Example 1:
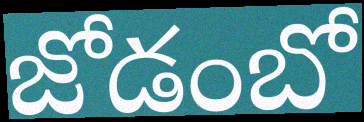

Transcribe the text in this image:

జోడంబో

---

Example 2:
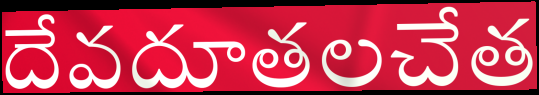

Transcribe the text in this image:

దేవదూతలచేత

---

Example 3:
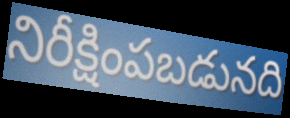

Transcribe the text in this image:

నిరీక్షింపబడునది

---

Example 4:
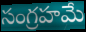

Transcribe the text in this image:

సంగ్రహమే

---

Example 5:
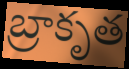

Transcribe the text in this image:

బ్రాకృత